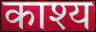
काश्य